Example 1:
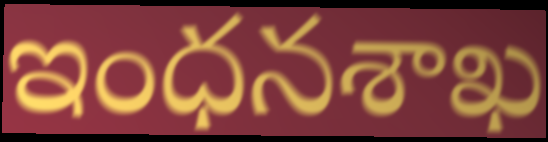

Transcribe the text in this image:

ఇంధనశాఖ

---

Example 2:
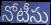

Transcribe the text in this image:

నోటీసు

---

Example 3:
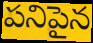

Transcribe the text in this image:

పనిపైన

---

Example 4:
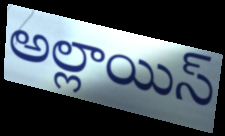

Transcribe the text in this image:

అల్లాయిస్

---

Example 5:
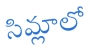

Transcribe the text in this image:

సిమ్లాలో